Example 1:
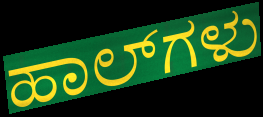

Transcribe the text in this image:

ಹಾಲ್‌ಗಳು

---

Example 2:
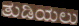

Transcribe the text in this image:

ತುಡಿಯಲು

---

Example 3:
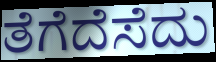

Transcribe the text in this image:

ತೆಗೆದೆಸೆದು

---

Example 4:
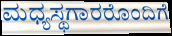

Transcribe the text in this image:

ಮಧ್ಯಸ್ಥಗಾರರೊಂದಿಗೆ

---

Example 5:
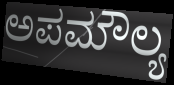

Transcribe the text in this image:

ಅಪಮೌಲ್ಯ